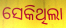
ସେକିଥିଲା